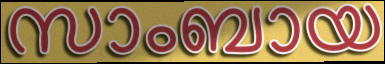
സാംബായ